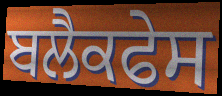
ਬਲੈਕਫੇਸ